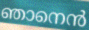
ഞാനെൻ